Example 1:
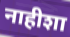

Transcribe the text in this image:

नाहीशा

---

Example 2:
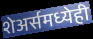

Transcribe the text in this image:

शेअर्समध्येही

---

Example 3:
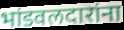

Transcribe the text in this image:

भांडवलदारांना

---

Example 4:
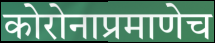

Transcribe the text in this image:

कोरोनाप्रमाणेच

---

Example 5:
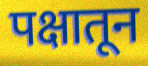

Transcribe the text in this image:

पक्षातून